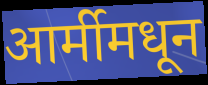
आर्मीमधून